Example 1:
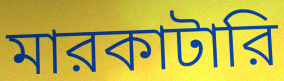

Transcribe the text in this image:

মারকাটারি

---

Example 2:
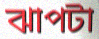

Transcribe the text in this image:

ঝাপটা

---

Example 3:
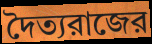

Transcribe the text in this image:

দৈত্যরাজের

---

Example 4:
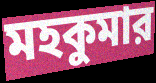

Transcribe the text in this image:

মহকুমার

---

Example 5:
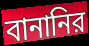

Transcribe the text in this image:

বানানির